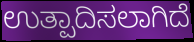
ಉತ್ಪಾದಿಸಲಾಗಿದೆ